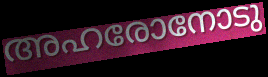
അഹരോനോടു